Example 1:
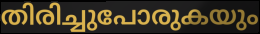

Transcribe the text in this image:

തിരിച്ചുപോരുകയും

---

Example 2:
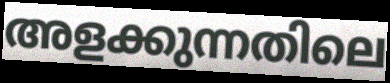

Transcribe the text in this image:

അളക്കുന്നതിലെ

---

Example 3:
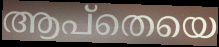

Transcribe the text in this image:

ആപ്തെയെ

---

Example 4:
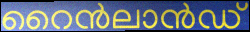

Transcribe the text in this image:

റൈൻലാൻഡ്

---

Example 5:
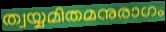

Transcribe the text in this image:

ത്വയ്യമിതമനുരാഗം